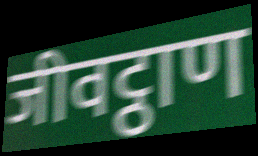
जीवट्ठाण